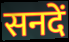
सनदें